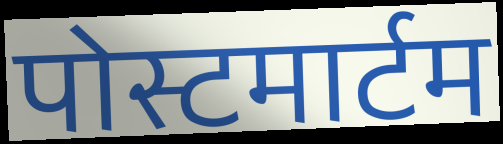
पोस्टमार्टम